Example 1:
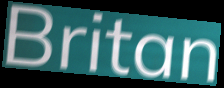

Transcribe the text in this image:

Britan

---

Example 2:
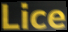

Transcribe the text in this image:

Lice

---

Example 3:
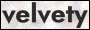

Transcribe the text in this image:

velvety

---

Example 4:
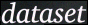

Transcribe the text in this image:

dataset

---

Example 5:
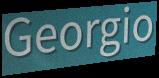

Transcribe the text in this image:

Georgio